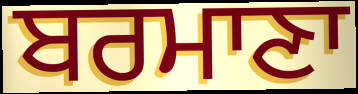
ਬਰਮਾਣਾ